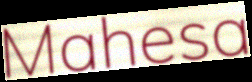
Mahesa